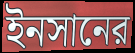
ইনসানের